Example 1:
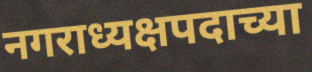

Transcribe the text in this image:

नगराध्यक्षपदाच्या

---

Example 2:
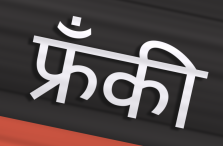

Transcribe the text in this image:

फ्रँकी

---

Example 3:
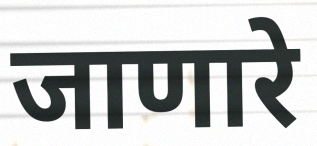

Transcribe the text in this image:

जाणारे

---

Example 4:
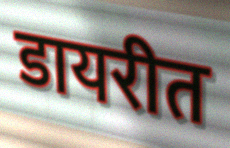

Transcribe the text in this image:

डायरीत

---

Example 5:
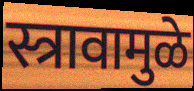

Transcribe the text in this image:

स्त्रावामुळे